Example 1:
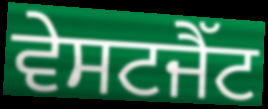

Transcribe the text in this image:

ਵੇਸਟਜੈੱਟ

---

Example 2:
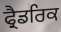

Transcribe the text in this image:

ਫ੍ਰੈਡਰਿਕ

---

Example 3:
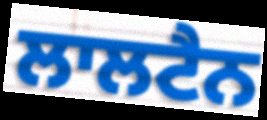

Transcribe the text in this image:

ਲਾਲਟੈਨ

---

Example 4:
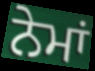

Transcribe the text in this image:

ਨੇਮਾਂ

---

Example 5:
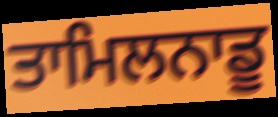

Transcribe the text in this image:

ਤਾਮਿਲਨਾਡੂ